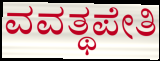
ವವತ್ಥಪೇತಿ